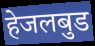
हेजलबुड